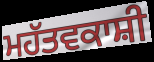
ਮਹੱਤਵਕਾਸ਼ੀ